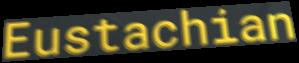
Eustachian